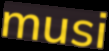
musi